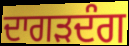
ਦਾਗੜਦੰਗ